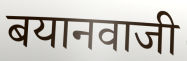
बयानवाजी